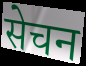
सेचन